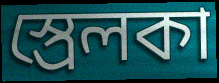
স্ত্রেলকা